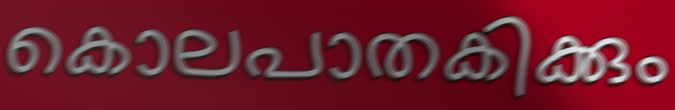
കൊലപാതകിക്കും